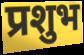
प्रशुभ